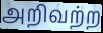
அறிவற்ற